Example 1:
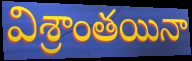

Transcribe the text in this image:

విశ్రాంతయినా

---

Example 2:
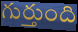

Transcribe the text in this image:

గుర్తుంది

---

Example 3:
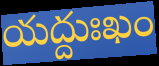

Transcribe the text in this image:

యద్దుఃఖం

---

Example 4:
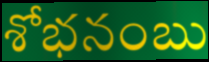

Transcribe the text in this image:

శోభనంబు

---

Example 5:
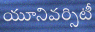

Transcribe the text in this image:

యూనివర్సిటీ